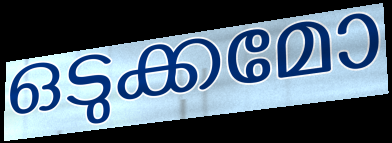
ഒടുക്കമോ